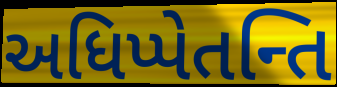
અધિપ્પેતન્તિ